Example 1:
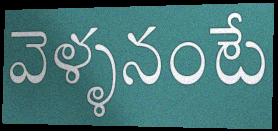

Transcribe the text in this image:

వెళ్ళనంటే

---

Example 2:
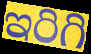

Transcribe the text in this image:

ఇరిగి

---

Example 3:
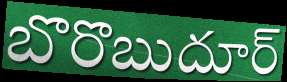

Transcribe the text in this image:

బొరొబుదూర్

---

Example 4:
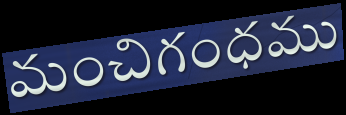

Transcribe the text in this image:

మంచిగంధము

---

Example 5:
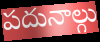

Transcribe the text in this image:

పదునాల్గు